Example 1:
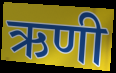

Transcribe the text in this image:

ऋणी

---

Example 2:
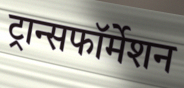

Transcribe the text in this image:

ट्रान्सफॉर्मेशन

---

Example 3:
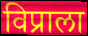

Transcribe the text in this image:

विप्राला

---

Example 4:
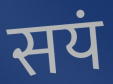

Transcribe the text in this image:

सयं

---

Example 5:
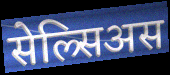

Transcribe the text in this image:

सेल्सिअस